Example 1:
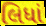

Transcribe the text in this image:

લિધાં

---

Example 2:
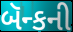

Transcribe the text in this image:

બૅન્કની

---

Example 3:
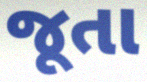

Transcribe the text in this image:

જૂતા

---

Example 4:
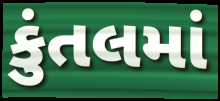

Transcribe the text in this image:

કુંતલમાં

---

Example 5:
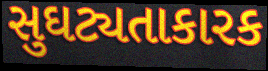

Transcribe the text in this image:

સુઘટ્યતાકારક